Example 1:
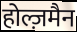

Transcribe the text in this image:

होल्ज़मैन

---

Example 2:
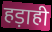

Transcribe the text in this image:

हड़ाही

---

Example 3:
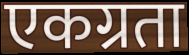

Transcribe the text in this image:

एकग्रता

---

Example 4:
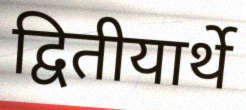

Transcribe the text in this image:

द्वितीयार्थे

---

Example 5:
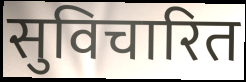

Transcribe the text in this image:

सुविचारित